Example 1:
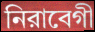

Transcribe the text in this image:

নিরাবেগী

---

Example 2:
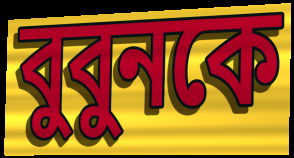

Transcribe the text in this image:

বুবুনকে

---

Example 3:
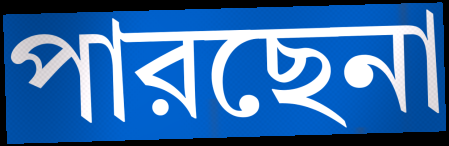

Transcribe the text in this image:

পারছেনা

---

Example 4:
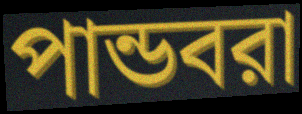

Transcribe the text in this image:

পান্ডবরা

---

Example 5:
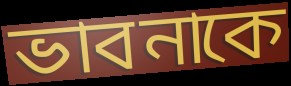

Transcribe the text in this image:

ভাবনাকে